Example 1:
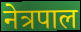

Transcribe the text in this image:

नेत्रपाल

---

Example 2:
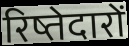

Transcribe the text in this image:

रिष्तेदारों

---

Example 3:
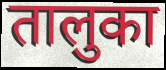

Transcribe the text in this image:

तालुका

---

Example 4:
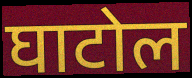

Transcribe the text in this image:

घाटोल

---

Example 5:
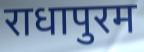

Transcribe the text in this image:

राधापुरम